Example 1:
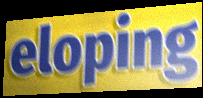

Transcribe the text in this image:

eloping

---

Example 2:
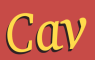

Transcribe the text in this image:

Cav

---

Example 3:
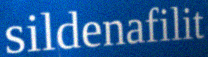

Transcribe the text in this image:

sildenafilit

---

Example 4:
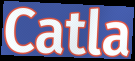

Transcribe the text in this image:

Catla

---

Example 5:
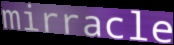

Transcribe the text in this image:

mirracle